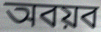
অবয়ব